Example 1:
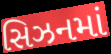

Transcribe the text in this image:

સિઝનમાં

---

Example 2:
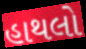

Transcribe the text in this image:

હાથલો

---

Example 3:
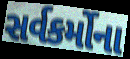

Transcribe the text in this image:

સર્વકર્મોના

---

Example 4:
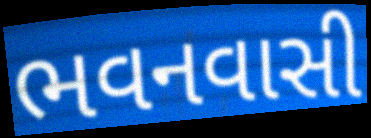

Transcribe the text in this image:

ભવનવાસી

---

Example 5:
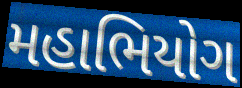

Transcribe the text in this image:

મહાભિયોગ